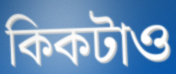
কিকটাও